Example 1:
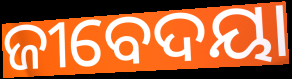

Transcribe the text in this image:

ଜୀବେଦୟା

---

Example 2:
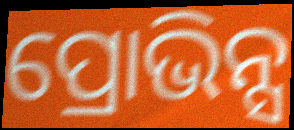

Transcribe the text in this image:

ପ୍ରୋଭିନ୍ସ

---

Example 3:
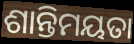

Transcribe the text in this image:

ଶାନ୍ତିମୟତା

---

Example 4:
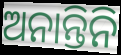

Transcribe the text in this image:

ଅନାନ୍ତିନି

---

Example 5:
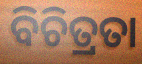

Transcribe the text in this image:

ବିଚିତ୍ରତା